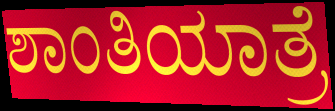
ಶಾಂತಿಯಾತ್ರೆ